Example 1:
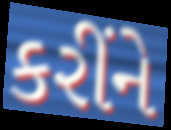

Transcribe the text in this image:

કરીંને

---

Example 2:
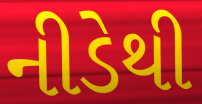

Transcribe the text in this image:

નીડેથી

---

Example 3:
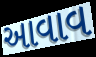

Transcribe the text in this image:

આવાવ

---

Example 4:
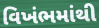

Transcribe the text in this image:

વિખંભમાંથી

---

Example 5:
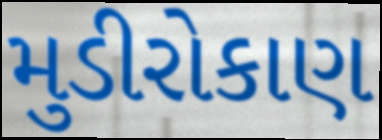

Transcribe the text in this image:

મુડીરોકાણ